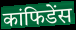
कांफिडेंस